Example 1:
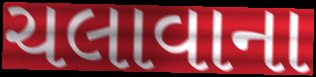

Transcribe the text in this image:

ચલાવાના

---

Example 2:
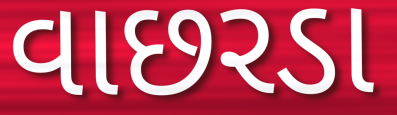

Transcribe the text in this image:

વાછરડા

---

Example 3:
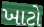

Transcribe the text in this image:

ખાટો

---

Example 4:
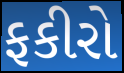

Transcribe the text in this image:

ફકીરો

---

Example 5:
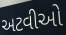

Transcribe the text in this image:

અટવીઓ